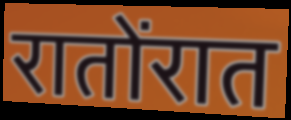
रातोंरात